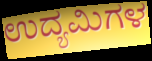
ಉದ್ಯಮಿಗಳ